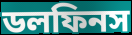
ডলফিনস